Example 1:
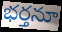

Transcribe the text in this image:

భర్తనూ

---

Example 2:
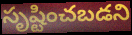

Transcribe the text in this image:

సృష్టించబడని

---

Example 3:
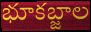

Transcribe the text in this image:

భూకబ్జాల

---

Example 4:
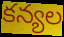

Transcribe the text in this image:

కన్యల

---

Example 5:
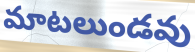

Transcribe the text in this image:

మాటలుండవు